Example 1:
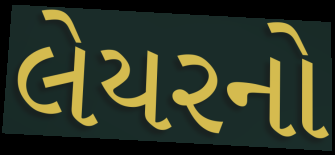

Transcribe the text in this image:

લેયરનો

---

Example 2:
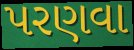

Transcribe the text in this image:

પરણવા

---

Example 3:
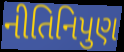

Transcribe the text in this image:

નીતિનિપુણ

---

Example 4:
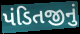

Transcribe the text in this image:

પંડિતજીનું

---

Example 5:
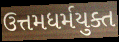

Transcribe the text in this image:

ઉત્તમધર્મયુક્ત